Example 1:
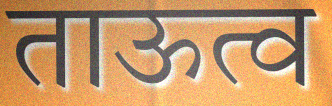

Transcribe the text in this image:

ताऊत्व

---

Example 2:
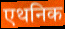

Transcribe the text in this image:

एथनिक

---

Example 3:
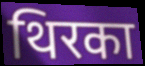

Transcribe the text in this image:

थिरका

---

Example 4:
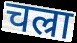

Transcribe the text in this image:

चल्रा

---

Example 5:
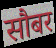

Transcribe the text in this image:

सौबर